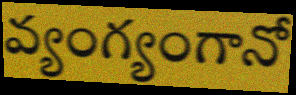
వ్యంగ్యంగానో